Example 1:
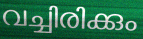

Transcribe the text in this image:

വച്ചിരിക്കും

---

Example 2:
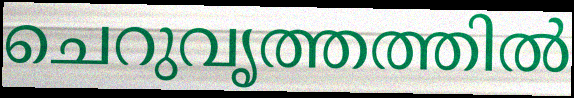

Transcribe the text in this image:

ചെറുവൃത്തത്തിൽ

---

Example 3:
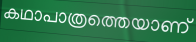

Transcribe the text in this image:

കഥാപാത്രത്തെയാണ്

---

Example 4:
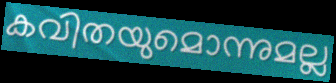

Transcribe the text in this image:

കവിതയുമൊന്നുമല്ല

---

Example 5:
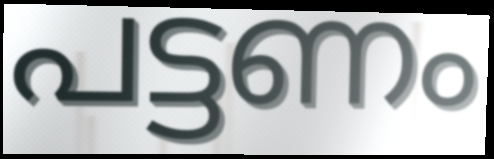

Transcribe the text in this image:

പട്ടണം